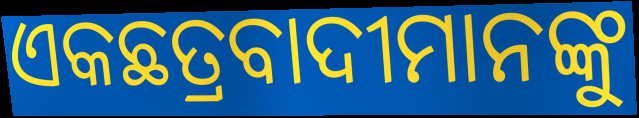
ଏକଛତ୍ରବାଦୀମାନଙ୍କୁ